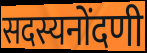
सदस्यनोंदणी